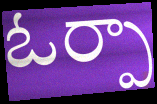
ఓర్పా